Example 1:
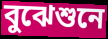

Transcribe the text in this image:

বুঝেশুনে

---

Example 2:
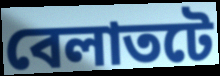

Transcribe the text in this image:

বেলাতটে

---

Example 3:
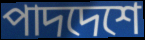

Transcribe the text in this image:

পাদদেশে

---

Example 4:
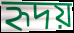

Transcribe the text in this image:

হৃদয়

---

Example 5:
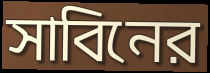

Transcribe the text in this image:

সাবিনের